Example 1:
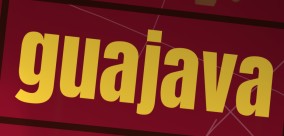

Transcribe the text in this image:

guajava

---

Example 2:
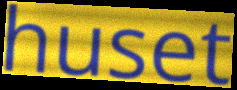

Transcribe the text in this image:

huset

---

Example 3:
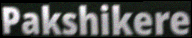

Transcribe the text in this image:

Pakshikere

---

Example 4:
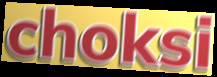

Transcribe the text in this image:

choksi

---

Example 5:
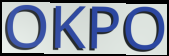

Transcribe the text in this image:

OKPO